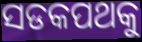
ସଡକପଥକୁ